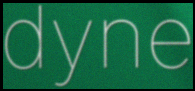
dyne